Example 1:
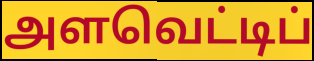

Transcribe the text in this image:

அளவெட்டிப்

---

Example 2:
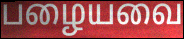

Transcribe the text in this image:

பழையவை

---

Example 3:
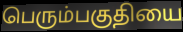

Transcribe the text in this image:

பெரும்பகுதியை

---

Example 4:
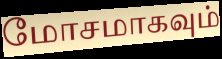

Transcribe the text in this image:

மோசமாகவும்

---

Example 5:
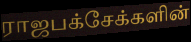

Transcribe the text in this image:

ராஜபக்சேக்களின்